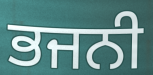
ਭਜਨੀ